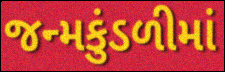
જન્મકુંડળીમાં